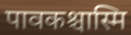
पावकश्चास्मि